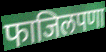
फाजिलपणा